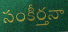
సంకీర్తనా